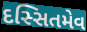
દસ્સિતમેવ